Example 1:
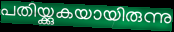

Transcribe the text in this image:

പതിയ്ക്കുകയായിരുന്നു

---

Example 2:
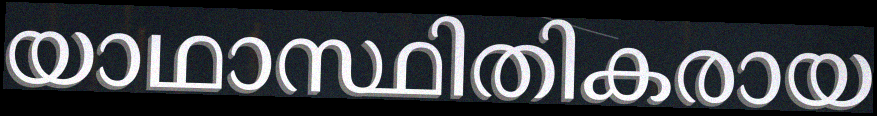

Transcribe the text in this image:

യാഥാസ്ഥിതികരായ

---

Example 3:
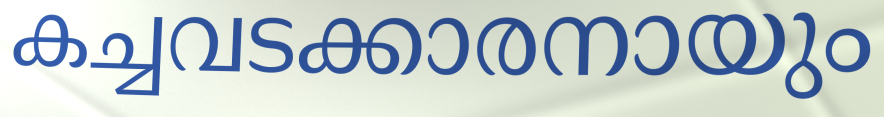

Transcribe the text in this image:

കച്ചവടക്കാരനായും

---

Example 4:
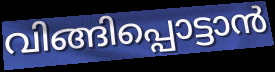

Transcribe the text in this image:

വിങ്ങിപ്പൊട്ടാൻ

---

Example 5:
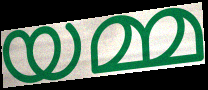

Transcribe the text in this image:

യമ്മ